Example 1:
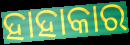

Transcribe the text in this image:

ହାହାକାର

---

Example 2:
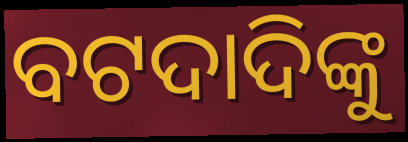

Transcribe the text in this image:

ବଟଦାଦିଙ୍କୁ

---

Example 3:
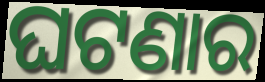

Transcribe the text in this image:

ଘଟଣାର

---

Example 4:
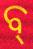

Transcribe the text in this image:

ବ୍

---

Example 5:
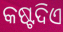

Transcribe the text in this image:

କଷ୍ଟଦିଏ